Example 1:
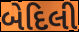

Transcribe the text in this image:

બેદિલી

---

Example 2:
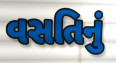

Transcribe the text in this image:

વસતિનું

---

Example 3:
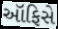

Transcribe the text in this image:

ઑફિસે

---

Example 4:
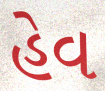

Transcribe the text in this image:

હેવ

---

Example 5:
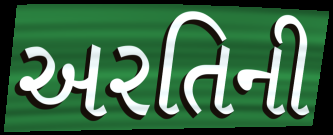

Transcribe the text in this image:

અરતિની